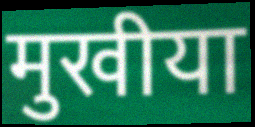
मुखीया